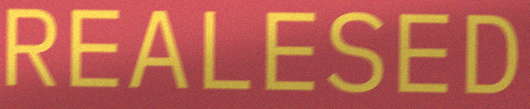
REALESED